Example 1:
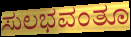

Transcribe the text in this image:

ಸುಲಭವಂತೂ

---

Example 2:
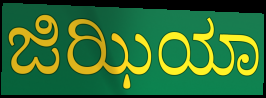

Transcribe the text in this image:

ಜಿಝಿಯಾ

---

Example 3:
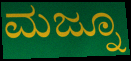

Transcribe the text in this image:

ಮಜ್ನೂ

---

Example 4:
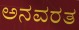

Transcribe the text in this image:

ಅನವರತ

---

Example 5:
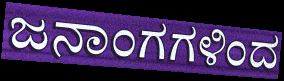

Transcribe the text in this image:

ಜನಾಂಗಗಳಿಂದ